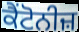
ਕੈਂਟੋਨੀਜ਼